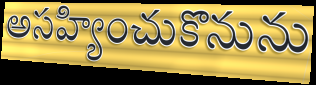
అసహ్యించుకొనును